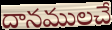
దానములచే